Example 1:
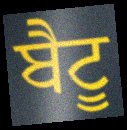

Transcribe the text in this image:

ਬੈਟੂ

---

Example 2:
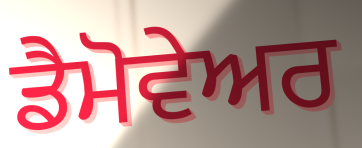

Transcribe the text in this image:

ਡੈਮੋਵੇਅਰ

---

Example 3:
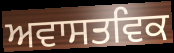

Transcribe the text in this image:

ਅਵਾਸਤਵਿਕ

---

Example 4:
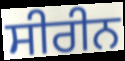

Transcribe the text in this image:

ਸੀਰੀਨ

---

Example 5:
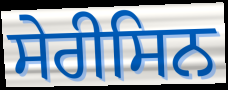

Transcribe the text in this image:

ਸੇਰੀਸਿਨ